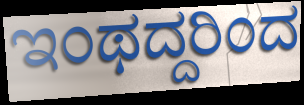
ಇಂಥದ್ದರಿಂದ